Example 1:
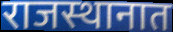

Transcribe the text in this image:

राजस्थानात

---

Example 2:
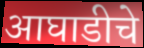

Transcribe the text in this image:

आघाडीचे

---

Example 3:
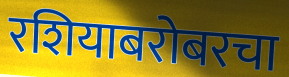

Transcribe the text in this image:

रशियाबरोबरचा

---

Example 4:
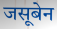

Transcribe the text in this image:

जसूबेन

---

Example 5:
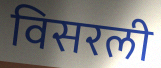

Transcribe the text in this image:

विसरली